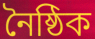
নৈষ্ঠিক